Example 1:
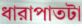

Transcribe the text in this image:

ধারাপাতটা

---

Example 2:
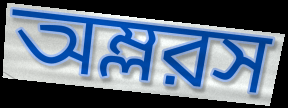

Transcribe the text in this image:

অম্লরস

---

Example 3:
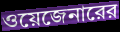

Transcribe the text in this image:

ওয়েজেনারের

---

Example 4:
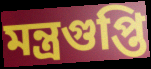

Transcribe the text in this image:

মন্ত্রগুপ্তি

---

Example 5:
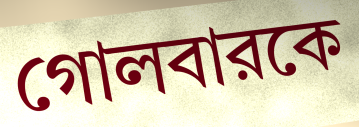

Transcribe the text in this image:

গোলবারকে